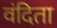
वंदिता